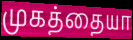
முகத்தையா